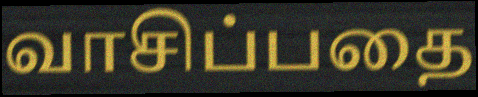
வாசிப்பதை